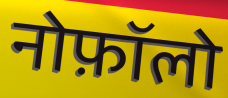
नोफ़ॉलो